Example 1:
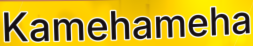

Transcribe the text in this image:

Kamehameha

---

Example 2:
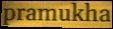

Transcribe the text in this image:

pramukha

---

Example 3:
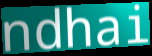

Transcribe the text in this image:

ndhai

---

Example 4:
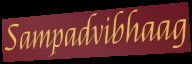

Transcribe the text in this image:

Sampadvibhaag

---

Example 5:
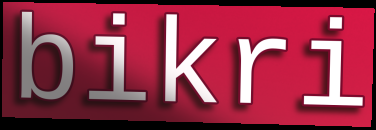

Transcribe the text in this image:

bikri